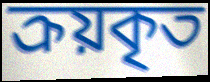
ক্রয়কৃত